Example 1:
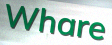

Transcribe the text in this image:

Whare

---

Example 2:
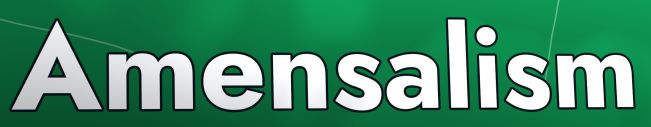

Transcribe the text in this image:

Amensalism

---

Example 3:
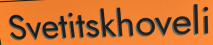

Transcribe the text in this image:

Svetitskhoveli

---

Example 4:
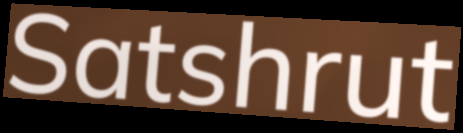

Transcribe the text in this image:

Satshrut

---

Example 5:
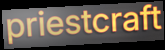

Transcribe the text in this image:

priestcraft